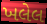
ખલેલ